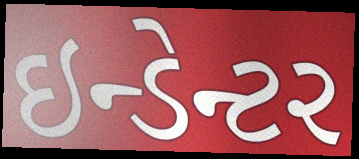
ઇન્ડેન્ટર